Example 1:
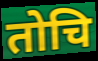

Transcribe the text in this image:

तोचि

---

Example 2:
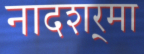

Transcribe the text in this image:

नादशर्मा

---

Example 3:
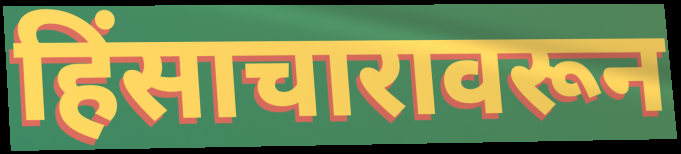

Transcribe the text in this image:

हिंसाचारावरून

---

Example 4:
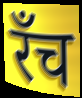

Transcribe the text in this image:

रँच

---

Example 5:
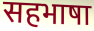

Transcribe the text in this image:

सहभाषा